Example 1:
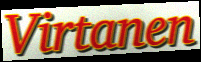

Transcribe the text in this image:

Virtanen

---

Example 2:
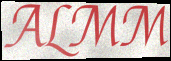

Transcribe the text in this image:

ALMM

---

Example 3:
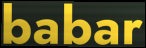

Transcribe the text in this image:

babar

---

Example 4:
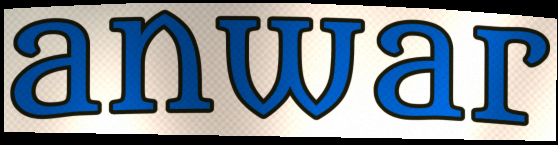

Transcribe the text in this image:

anwar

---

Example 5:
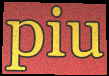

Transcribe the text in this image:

piu